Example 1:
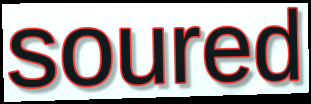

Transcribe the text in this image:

soured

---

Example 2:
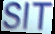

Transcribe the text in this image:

SIT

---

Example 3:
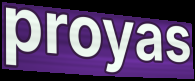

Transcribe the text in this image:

proyas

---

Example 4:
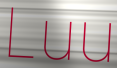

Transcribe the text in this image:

Luu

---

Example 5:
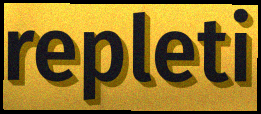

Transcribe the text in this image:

repleti